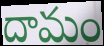
దామం